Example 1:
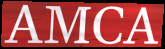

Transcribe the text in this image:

AMCA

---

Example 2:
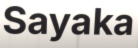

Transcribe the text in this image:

Sayaka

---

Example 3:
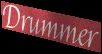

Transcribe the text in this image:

Drummer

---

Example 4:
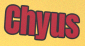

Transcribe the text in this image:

Chyus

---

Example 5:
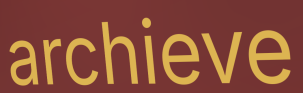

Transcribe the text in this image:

archieve